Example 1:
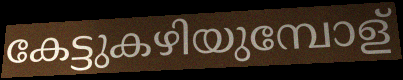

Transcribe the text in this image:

കേട്ടുകഴിയുമ്പോള്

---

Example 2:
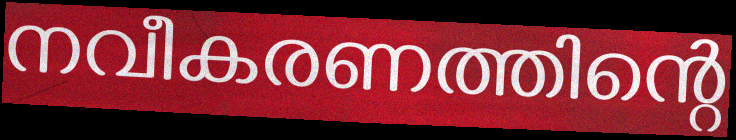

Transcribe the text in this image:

നവീകരണത്തിന്റെ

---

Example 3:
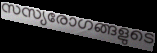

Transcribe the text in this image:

സസ്യരോഗങ്ങളുടെ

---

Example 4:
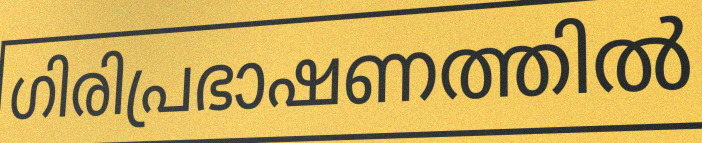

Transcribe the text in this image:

ഗിരിപ്രഭാഷണത്തിൽ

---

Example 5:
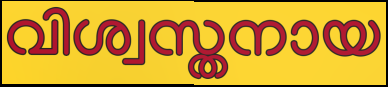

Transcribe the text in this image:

വിശ്വസ്തനായ